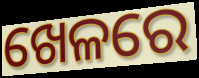
ଖେଳରେ